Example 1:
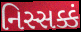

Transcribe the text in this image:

નિસ્સક્કં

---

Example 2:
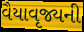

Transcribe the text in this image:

વૈયાવૃજ્યની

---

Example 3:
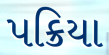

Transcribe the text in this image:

પક્રિયા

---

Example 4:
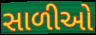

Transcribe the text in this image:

સાળીઓ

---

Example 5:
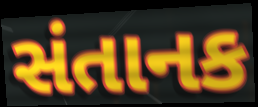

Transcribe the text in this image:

સંતાનક